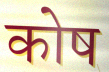
कोष